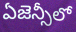
ఏజెన్సీలో